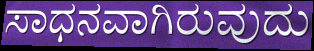
ಸಾಧನವಾಗಿರುವುದು